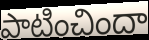
పాటించిందా